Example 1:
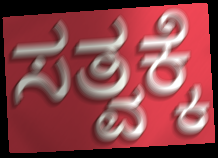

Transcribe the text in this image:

ಸತ್ವಕ್ಕೆ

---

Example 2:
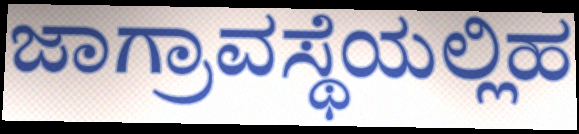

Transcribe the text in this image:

ಜಾಗ್ರಾವಸ್ಥೆಯಲ್ಲಿಹ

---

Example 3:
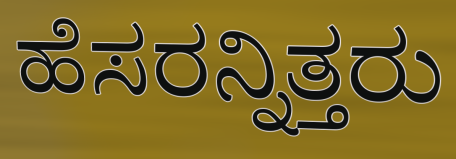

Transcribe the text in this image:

ಹೆಸರನ್ನಿತ್ತರು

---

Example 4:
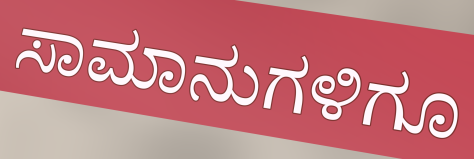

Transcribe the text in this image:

ಸಾಮಾನುಗಳಿಗೂ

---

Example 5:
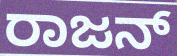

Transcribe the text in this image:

ರಾಜನ್